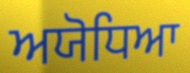
ਅਯੋਧਿਆ